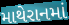
માથેરાનમાં